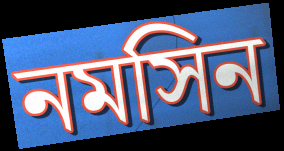
নমসিন